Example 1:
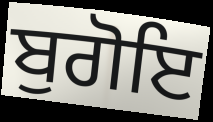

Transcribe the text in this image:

ਬੁਗੋਇ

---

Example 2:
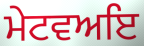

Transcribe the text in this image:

ਮੇਟਵਅਇ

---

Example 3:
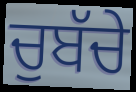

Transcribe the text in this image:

ਚੁਬੱਚੇ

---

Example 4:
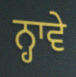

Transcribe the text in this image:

ਨ੍ਹਾਵੇ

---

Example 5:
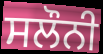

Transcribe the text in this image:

ਸਲੌਨੀ